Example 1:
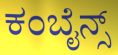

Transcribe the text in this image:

ಕಂಬೈನ್ಸ್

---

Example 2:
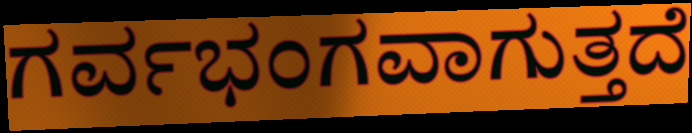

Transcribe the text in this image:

ಗರ್ವಭಂಗವಾಗುತ್ತದೆ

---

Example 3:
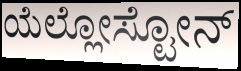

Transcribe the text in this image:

ಯೆಲ್ಲೋಸ್ಟೋನ್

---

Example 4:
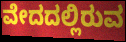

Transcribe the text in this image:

ವೇದದಲ್ಲಿರುವ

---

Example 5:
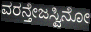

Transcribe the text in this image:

ವರನ್ತೇಜಸ್ವಿನೋ